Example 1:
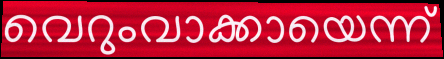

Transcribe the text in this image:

വെറുംവാക്കായെന്ന്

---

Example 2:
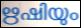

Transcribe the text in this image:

ഋഷിയും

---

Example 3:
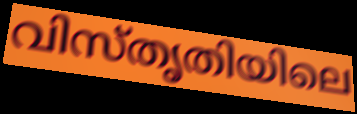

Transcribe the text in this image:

വിസ്തൃതിയിലെ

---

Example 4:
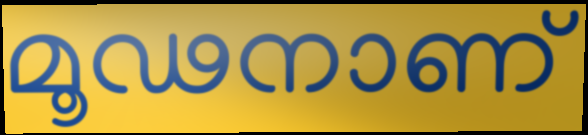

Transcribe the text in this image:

മൂഢനാണ്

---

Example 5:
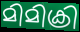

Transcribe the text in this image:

മിമിക്രി